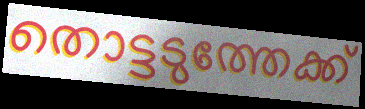
തൊട്ടടുത്തേക്ക്